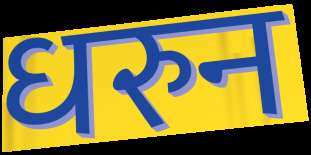
धरुन